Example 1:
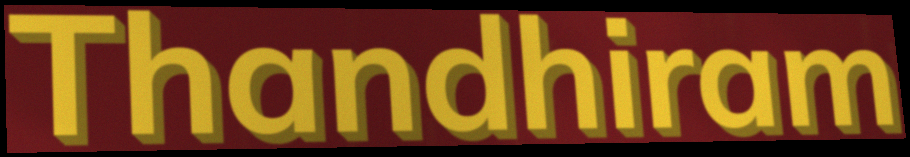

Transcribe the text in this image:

Thandhiram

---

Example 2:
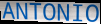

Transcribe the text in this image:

ANTONIO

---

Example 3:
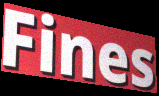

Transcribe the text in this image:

Fines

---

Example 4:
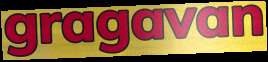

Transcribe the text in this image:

gragavan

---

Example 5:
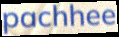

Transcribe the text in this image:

pachhee